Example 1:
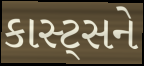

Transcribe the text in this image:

કાસ્ટ્સને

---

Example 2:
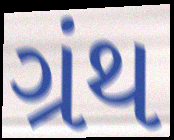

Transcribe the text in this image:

ગ્રંથ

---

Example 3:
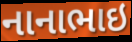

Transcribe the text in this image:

નાનાભાઇ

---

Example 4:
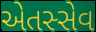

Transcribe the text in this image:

એતસ્સેવ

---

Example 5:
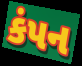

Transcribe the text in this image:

કંપન